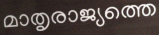
മാതൃരാജ്യത്തെ